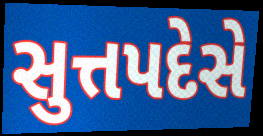
સુત્તપદેસે